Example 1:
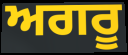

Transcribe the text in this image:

ਅਗਰੂ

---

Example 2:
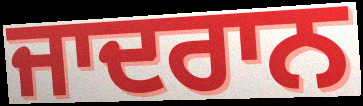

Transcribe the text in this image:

ਜਾਦਰਾਨ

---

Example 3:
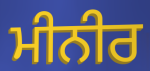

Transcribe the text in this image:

ਮੀਨੀਰ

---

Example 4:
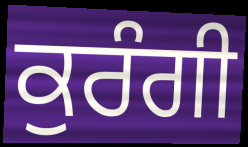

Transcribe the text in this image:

ਕੁਰੰਗੀ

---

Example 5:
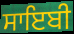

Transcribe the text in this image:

ਸਾਇਬੀ